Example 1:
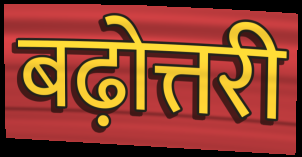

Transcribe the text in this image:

बढ़ोत्तरी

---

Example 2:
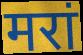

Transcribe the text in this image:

मरां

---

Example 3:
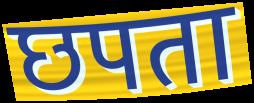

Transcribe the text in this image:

छपता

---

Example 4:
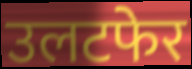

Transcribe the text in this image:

उलटफेर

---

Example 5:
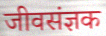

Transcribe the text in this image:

जीवसंज्ञक